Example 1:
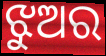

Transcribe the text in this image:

ଝୁଅର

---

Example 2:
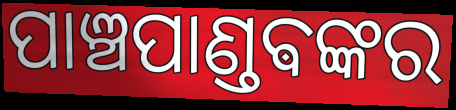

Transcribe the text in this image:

ପାଞ୍ଚପାଣ୍ଡଵଙ୍କର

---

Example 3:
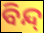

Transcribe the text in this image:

ବିନ୍ଦ୍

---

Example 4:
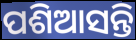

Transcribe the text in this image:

ପଶିଆସନ୍ତି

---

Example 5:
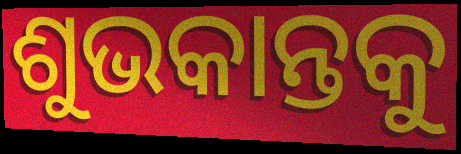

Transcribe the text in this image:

ଶୁଭକାନ୍ତକୁ